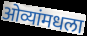
ओव्यांमधला